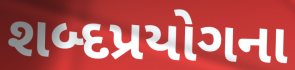
શબ્દપ્રયોગના